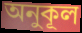
অনুকূল